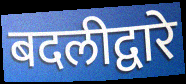
बदलीद्वारे